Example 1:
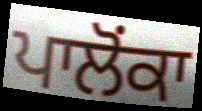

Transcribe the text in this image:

ਪਾਲੋਂਕਾ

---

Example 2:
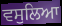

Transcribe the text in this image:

ਵਸੁਲਿਆ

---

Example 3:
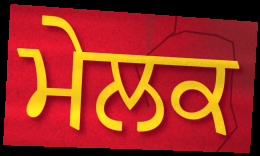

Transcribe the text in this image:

ਮੇਲਕ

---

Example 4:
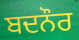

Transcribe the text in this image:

ਬਦਨੌਰ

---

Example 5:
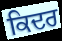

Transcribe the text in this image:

ਕਿਦਰ